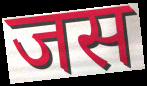
जस